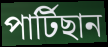
পাৰ্টিছান